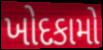
ખોદકામો